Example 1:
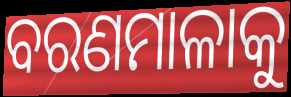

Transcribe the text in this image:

ବରଣମାଳାକୁ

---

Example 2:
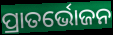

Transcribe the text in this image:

ପ୍ରାତର୍ଭୋଜନ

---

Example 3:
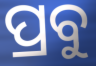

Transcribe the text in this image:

ପ୍ରବୁ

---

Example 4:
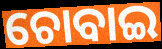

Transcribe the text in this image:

ଚୋବାଇ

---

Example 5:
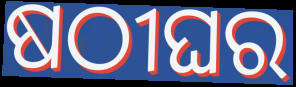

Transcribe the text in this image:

ଷଠୀଘର